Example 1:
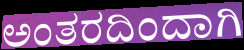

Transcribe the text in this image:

ಅಂತರದಿಂದಾಗಿ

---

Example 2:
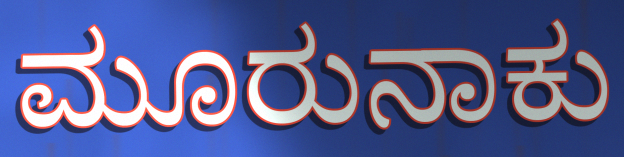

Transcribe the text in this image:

ಮೂರುನಾಕು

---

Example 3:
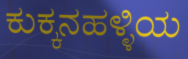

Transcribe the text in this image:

ಕುಕ್ಕನಹಳ್ಳಿಯ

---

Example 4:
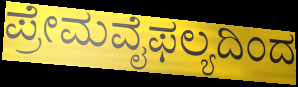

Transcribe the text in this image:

ಪ್ರೇಮವೈಫಲ್ಯದಿಂದ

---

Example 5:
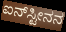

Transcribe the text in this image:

ಐನ್‌ಸ್ಟೀನನ